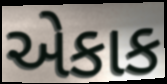
એકાક